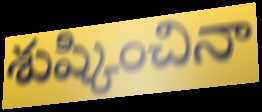
శుష్కించినా